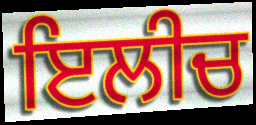
ਇਲੀਚ